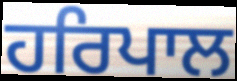
ਹਰਿਪਾਲ